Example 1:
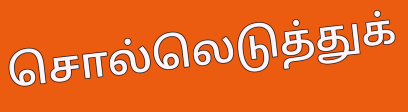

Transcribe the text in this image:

சொல்லெடுத்துக்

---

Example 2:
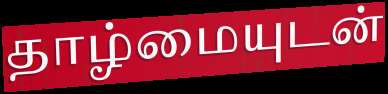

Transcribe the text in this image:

தாழ்மையுடன்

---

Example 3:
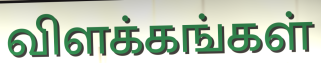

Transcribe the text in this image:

விளக்கங்கள்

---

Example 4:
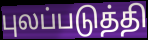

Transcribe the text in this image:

புலப்படுத்தி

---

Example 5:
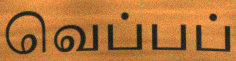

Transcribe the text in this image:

வெப்பப்